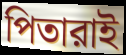
পিতারাই